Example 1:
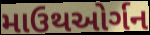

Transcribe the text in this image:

માઉથઓર્ગન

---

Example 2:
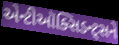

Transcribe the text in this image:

એન્ટીઑક્સિડન્ટ્સને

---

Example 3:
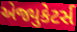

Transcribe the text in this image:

એજ્યુકેટર્સ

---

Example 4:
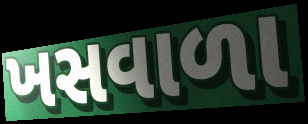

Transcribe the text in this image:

ખસવાળા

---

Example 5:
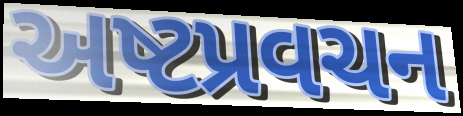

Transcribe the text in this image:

અષ્ટપ્રવચન